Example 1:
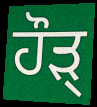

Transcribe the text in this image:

ਹੌੜ੍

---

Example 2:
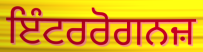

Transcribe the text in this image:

ਇੰਟਰਰੋਗਨਜ਼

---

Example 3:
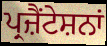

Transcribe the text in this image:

ਪ੍ਰਜ਼ੈਂਟੇਸ਼ਨਾਂ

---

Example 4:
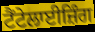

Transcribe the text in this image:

ਟੈਂਟੇਲਾਈਜ਼ਿੰਗ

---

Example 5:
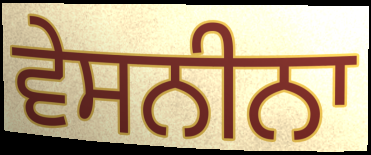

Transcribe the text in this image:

ਵੇਸਨੀਨਾ